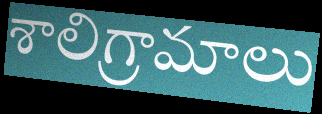
శాలిగ్రామాలు